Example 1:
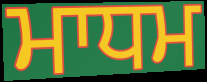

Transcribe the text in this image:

ਮਾਧਮ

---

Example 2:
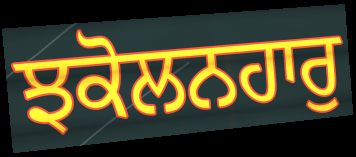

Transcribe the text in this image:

ਝਕੋਲਨਹਾਰੁ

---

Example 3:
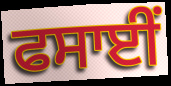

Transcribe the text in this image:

ਫਸਾਈਂ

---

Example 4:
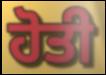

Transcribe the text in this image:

ਹੋਤੀ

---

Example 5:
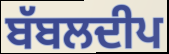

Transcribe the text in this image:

ਬੱਬਲਦੀਪ